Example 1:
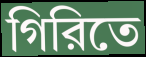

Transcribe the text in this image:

গিরিতে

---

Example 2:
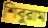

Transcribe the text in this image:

শিবুরাম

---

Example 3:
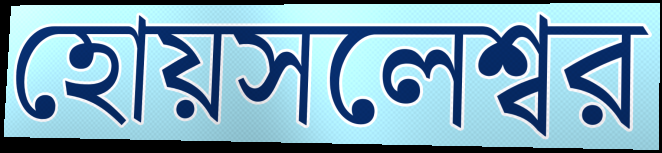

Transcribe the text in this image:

হোয়সলেশ্বর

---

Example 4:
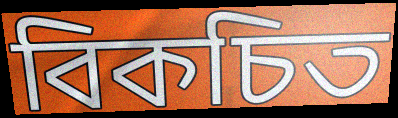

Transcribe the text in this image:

বিকচিত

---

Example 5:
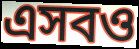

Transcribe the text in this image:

এসবও